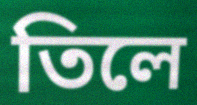
তিলে